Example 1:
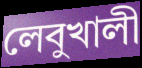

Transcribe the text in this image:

লেবুখালী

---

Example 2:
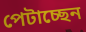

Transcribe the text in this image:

পেটাচ্ছেন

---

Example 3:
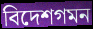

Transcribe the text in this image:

বিদেশগমন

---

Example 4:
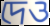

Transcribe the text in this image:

দেও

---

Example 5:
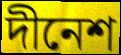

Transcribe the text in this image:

দীনেশ